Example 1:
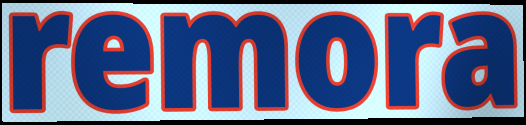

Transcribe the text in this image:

remora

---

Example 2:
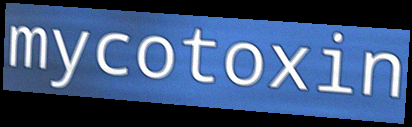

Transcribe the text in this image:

mycotoxin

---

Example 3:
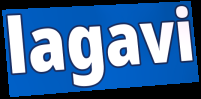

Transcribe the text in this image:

lagavi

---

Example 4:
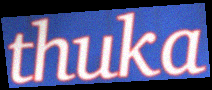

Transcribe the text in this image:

thuka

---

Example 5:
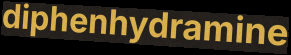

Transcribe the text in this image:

diphenhydramine